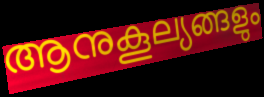
ആനുകൂല്യങ്ങളും